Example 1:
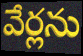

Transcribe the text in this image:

వేర్లను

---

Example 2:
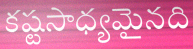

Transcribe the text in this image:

కష్టసాధ్యమైనది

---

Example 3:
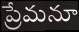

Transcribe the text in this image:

ప్రేమనూ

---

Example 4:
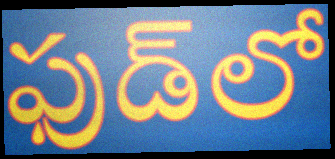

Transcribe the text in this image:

ఫుడ్‌లో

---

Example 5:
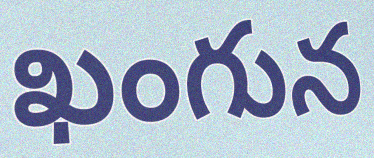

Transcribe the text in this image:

ఖంగున